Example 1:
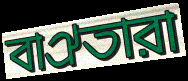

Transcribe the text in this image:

বাঐতারা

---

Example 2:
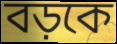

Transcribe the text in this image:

বড়কে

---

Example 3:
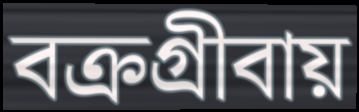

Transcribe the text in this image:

বক্রগ্রীবায়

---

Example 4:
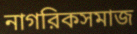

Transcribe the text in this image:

নাগরিকসমাজ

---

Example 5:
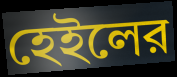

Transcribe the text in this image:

হেইলের